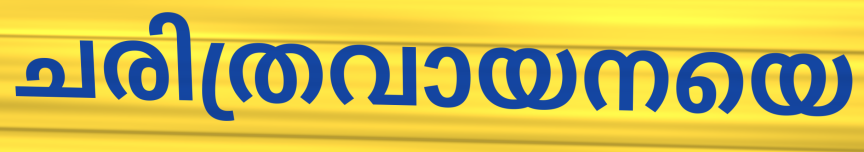
ചരിത്രവായനയെ